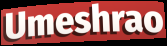
Umeshrao